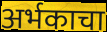
अर्भकाचा